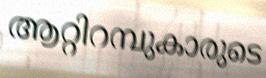
ആറ്റിറമ്പുകാരുടെ